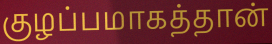
குழப்பமாகத்தான்